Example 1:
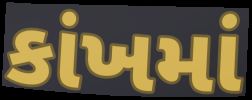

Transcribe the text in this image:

કાંખમાં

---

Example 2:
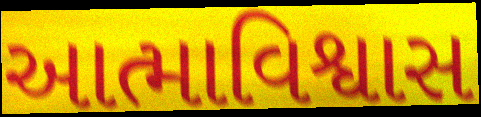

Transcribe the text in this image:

આત્માવિશ્વાસ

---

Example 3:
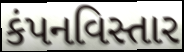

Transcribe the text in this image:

કંપનવિસ્તાર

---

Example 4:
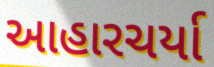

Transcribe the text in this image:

આહારચર્યા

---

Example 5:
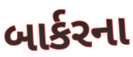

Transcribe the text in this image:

બાર્કરના